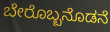
ಬೇರೊಬ್ಬನೊಡನೆ